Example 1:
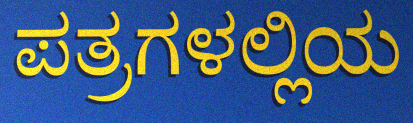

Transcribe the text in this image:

ಪತ್ರಗಳಲ್ಲಿಯ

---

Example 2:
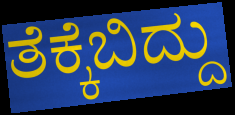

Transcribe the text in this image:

ತೆಕ್ಕೆಬಿದ್ದು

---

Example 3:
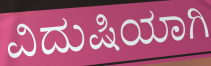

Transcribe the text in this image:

ವಿದುಷಿಯಾಗಿ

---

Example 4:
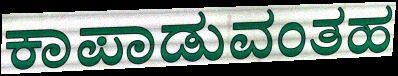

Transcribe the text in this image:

ಕಾಪಾಡುವಂತಹ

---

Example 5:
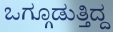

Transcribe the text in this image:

ಒಗ್ಗೂಡುತ್ತಿದ್ದ